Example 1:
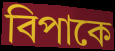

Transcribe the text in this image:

বিপাকে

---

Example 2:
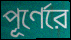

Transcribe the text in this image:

পূর্ণেরে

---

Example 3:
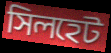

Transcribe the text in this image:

সিলহেট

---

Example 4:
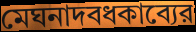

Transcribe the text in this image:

মেঘনাদবধকাব্যের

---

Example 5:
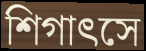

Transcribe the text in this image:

শিগাৎসে